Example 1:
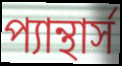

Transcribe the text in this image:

প্যান্থার্স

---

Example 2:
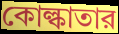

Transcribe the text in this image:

কোল্কাতার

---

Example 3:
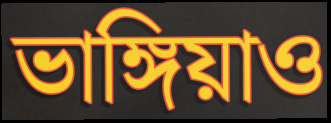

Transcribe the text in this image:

ভাঙ্গিয়াও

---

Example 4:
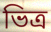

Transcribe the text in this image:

ভিত্র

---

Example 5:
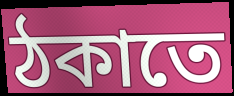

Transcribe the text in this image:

ঠকাতে